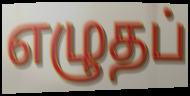
எழுதப்